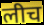
लीच